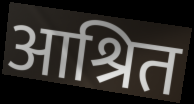
आश्रित